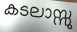
കടലാസ്സു